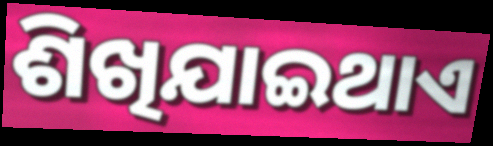
ଶିଖିଯାଇଥାଏ